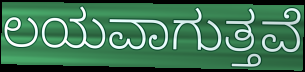
ಲಯವಾಗುತ್ತವೆ